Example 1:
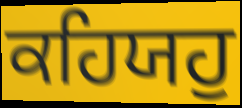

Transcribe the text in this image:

ਕਹਿਯਹੁ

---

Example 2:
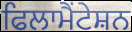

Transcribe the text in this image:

ਫਿਲਾਮੈਂਟੇਸ਼ਨ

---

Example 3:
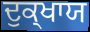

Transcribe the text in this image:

ਦੁਕ੍ਖਾਯ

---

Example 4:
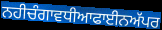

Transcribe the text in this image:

ਨਹੀਚੰਗਾਵਧੀਆਫਾਈਨਅੱਪਰ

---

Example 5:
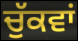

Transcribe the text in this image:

ਚੁੱਕਵਾਂ